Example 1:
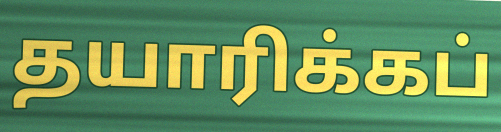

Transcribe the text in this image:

தயாரிக்கப்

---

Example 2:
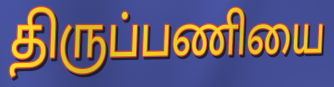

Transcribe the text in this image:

திருப்பணியை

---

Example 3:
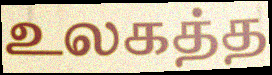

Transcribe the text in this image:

உலகத்த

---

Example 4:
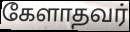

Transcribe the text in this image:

கேளாதவர்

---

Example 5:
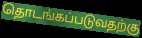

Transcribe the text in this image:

தொடங்கப்படுவதற்கு